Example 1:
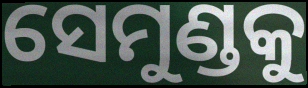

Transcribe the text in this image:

ସେମୁଣ୍ଡକୁ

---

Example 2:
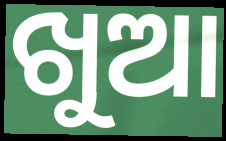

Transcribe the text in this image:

ଖୁଆ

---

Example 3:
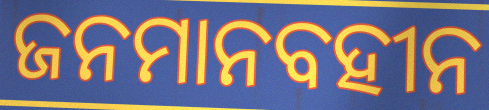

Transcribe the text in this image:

ଜନମାନବହୀନ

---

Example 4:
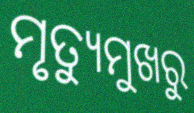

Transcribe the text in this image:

ମୃତ୍ୟୁମୁଖରୁ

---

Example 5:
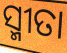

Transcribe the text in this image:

ସ୍ମୀତା